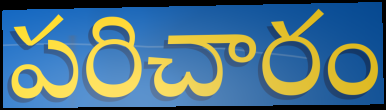
పరిచారం